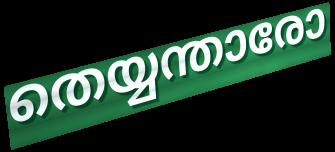
തെയ്യന്താരോ